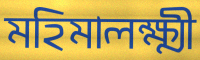
মহিমালক্ষ্মী